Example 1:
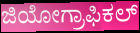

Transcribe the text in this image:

ಜಿಯೋಗ್ರಾಫಿಕಲ್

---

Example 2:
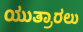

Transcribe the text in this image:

ಯುತ್ರಾರಲು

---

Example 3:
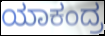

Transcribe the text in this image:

ಯಾಕಂದ್ರ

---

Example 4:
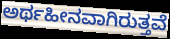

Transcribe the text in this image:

ಅರ್ಥಹೀನವಾಗಿರುತ್ತವೆ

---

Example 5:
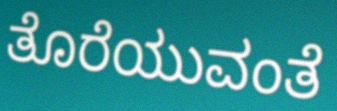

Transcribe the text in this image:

ತೊರೆಯುವಂತೆ